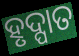
ହୃଦ୍ପାତ